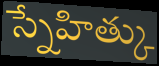
స్నేహిత్కు